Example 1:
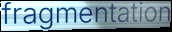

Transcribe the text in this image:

fragmentation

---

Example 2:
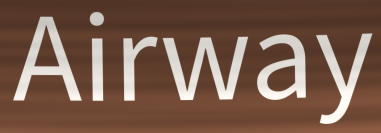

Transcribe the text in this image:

Airway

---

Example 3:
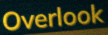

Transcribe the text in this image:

Overlook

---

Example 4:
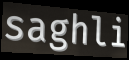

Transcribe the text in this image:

saghli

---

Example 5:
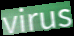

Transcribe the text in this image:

virus